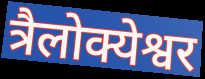
त्रैलोक्येश्वर